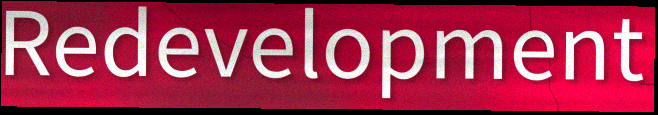
Redevelopment